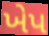
ખેપ